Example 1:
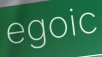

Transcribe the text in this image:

egoic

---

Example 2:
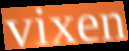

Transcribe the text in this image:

vixen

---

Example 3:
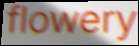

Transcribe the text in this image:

flowery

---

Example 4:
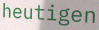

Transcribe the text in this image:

heutigen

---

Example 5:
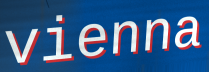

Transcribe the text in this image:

vienna